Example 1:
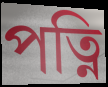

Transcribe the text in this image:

পত্নি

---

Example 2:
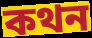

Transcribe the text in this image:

কথন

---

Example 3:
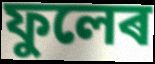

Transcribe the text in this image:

ফুলেৰ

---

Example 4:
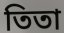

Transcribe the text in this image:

তিতা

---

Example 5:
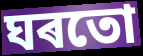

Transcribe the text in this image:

ঘৰতো